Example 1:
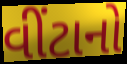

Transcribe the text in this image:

વીંટાનો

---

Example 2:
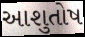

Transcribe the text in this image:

આશુતોષ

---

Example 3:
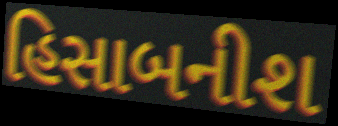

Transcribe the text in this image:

હિસાબનીશ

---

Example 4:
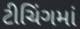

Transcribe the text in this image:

ટીચિંગમાં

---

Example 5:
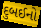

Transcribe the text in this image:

દુબઈનો